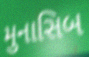
મુનાસિબ